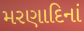
મરણાદિનાં